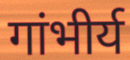
गांभीर्य